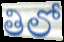
తిలో